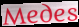
Medes